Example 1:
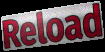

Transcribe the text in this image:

Reload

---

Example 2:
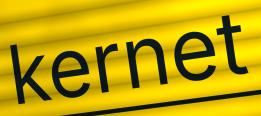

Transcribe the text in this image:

kernet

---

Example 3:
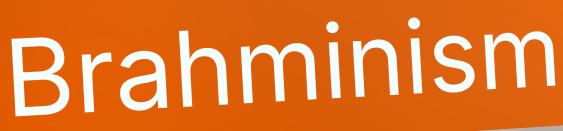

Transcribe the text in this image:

Brahminism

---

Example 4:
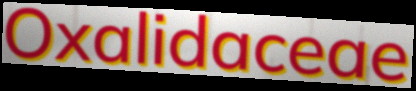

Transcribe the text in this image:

Oxalidaceae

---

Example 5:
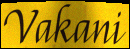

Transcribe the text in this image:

Vakani